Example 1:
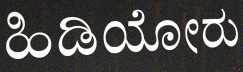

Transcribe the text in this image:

ಹಿಡಿಯೋರು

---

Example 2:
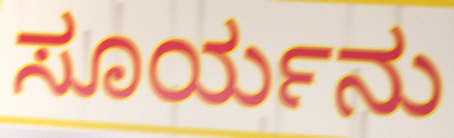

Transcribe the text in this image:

ಸೂರ್ಯನು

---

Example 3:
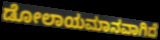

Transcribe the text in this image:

ಡೋಲಾಯಮಾನವಾಗಿದೆ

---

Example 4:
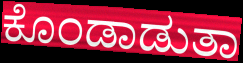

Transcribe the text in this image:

ಕೊಂಡಾಡುತಾ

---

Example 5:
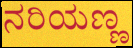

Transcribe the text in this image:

ನರಿಯಣ್ಣ